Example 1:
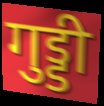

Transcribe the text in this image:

गुड्डी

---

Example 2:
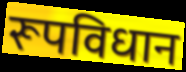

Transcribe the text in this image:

रूपविधान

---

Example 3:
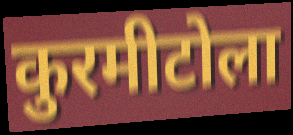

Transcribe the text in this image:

कुरमीटोला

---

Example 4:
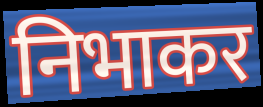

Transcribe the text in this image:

निभाकर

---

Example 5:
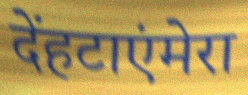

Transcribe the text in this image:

देंहटाएंमेरा